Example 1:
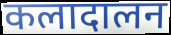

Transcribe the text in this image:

कलादालन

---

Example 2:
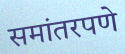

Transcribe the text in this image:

समांतरपणे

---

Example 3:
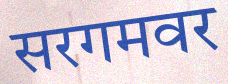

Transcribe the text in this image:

सरगमवर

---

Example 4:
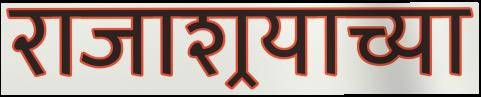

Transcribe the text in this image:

राजाश्रयाच्या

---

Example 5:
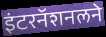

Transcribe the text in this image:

इंटरनॅशनलने